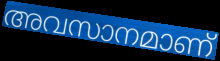
അവസാനമാണ്